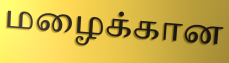
மழைக்கான